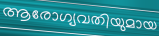
ആരോഗ്യവതിയുമായ